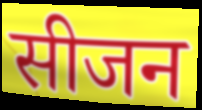
सीजन